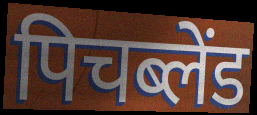
पिचब्लेंड